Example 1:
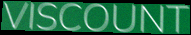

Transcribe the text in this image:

VISCOUNT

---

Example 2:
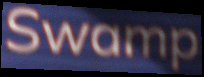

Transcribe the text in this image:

Swamp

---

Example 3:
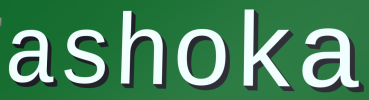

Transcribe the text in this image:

ashoka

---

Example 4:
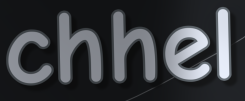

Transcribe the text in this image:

chhel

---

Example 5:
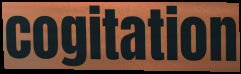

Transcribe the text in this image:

cogitation